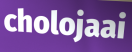
cholojaai